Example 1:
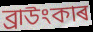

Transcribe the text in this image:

ব্ৰাউংকাৰ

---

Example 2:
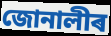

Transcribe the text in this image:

জোনালীৰ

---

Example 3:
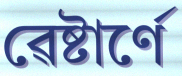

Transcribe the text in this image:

ৱেষ্টাৰ্ণে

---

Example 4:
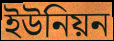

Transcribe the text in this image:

ইউনিয়ন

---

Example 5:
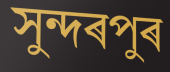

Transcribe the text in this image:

সুন্দৰপুৰ